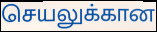
செயலுக்கான